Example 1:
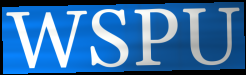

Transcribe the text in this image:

WSPU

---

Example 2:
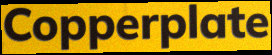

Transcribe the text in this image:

Copperplate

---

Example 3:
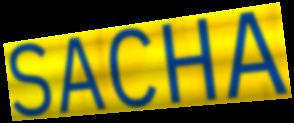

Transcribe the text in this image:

SACHA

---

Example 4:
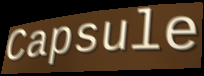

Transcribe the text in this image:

Capsule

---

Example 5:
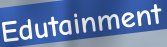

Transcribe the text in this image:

Edutainment